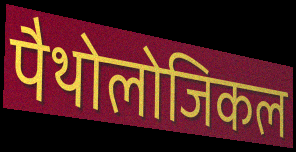
पैथोलोजिकल